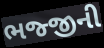
ભજ્જીની